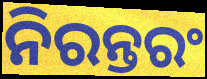
ନିରନ୍ତରଂ